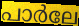
പാർലേ